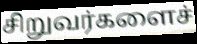
சிறுவர்களைச்